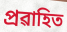
প্ৰৱাহিত